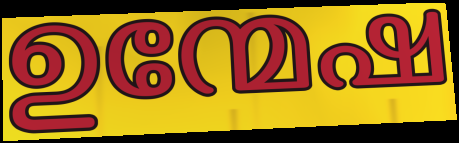
ഉന്മേഷ